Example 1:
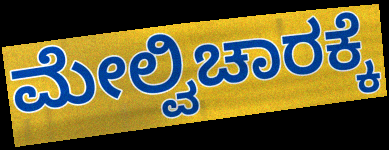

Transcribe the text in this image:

ಮೇಲ್ವಿಚಾರಕ್ಕೆ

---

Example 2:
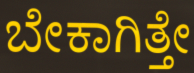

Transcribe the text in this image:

ಬೇಕಾಗಿತ್ತೇ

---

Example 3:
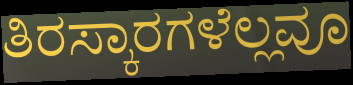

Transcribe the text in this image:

ತಿರಸ್ಕಾರಗಳೆಲ್ಲವೂ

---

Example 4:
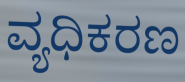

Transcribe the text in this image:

ವ್ಯಧಿಕರಣ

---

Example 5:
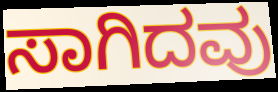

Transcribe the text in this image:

ಸಾಗಿದವು